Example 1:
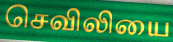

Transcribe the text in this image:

செவிலியை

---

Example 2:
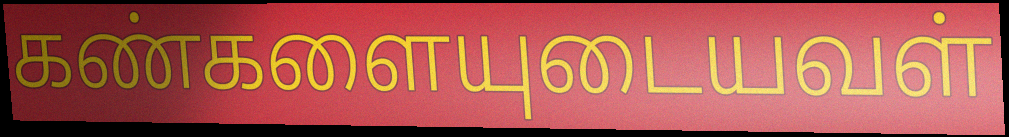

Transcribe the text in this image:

கண்களையுடையவள்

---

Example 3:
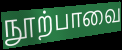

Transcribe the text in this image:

நூற்பாவை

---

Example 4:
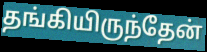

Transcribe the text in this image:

தங்கியிருந்தேன்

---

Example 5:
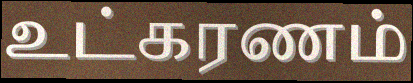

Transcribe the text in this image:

உட்கரணம்